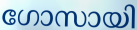
ഗോസായി